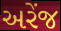
અરેંજ